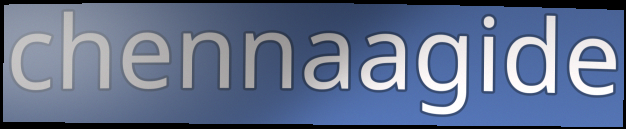
chennaagide